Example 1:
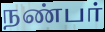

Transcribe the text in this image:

நண்பர்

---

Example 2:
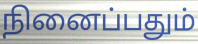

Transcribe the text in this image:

நினைப்பதும்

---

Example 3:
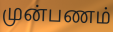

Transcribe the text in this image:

முன்பணம்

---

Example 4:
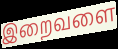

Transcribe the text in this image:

இறைவளை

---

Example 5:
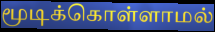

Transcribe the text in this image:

மூடிக்கொள்ளாமல்